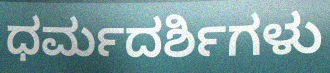
ಧರ್ಮದರ್ಶಿಗಳು